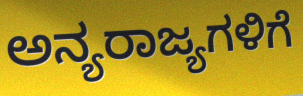
ಅನ್ಯರಾಜ್ಯಗಳಿಗೆ